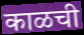
काळची